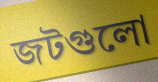
জটগুলো